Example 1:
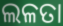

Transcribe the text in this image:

ଲଳତା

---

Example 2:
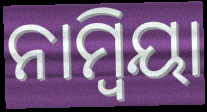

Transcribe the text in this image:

ନାମ୍ୱିୟା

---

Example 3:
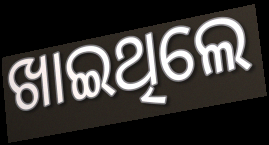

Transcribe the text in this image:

ଖାଇଥିଲେ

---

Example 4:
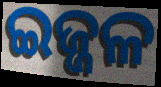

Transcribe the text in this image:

ଇଜ୍ଜଳ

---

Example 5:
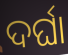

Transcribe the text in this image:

ଦର୍ଘା